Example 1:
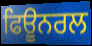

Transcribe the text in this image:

ਫਿਊਨਰਲ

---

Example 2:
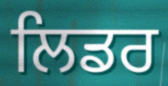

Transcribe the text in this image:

ਲਿਡਰ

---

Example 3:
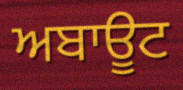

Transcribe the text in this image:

ਅਬਾਊਟ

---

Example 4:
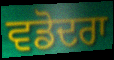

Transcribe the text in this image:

ਵਡੋਦਰਾ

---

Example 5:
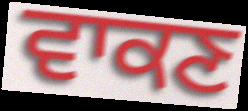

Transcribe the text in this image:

ਵਾਕਣ